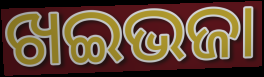
ଖଇଭଜା